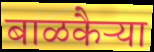
बाळकैऱ्या